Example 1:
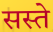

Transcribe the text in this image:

सस्‍ते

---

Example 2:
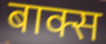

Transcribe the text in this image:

बाक्स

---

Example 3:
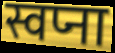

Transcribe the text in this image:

स्‍वप्‍ना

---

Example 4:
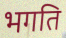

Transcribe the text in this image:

भगति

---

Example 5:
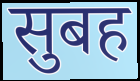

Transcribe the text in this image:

सुबह